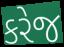
કરેજ